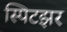
स्पिटझर